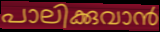
പാലിക്കുവാൻ